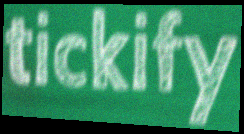
tickify